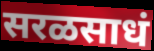
सरळसाधं